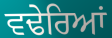
ਵਢੇਰਿਆਂ